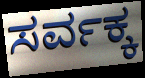
ಸರ್ವಕ್ಕ